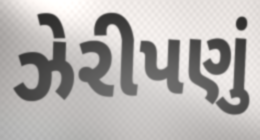
ઝેરીપણું